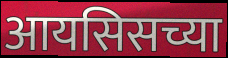
आयसिसच्या